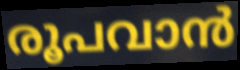
രൂപവാൻ